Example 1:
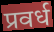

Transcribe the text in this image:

प्रवर्ध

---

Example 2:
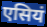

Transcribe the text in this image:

एसियं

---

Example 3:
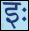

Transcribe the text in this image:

इः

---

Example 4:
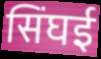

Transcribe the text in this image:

सिंघई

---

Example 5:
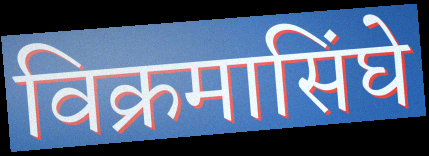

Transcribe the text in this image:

विक्रमासिंघे